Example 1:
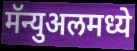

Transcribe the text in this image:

मॅन्युअलमध्ये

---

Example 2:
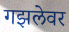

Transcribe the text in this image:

गझलेवर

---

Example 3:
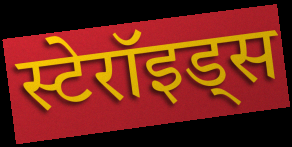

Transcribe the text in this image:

स्टेरॉइड्स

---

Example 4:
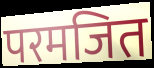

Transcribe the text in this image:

परमजित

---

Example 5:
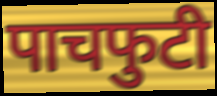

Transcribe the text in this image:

पाचफुटी